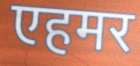
एहमर